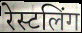
रेस्टलिंग